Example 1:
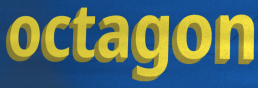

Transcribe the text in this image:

octagon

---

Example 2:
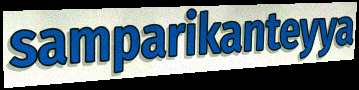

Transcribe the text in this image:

samparikanteyya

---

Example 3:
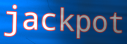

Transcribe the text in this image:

jackpot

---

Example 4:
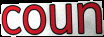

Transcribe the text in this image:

coun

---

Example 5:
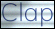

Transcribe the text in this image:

Clap